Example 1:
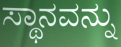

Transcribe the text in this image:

ಸ್ಥಾನವನ್ನು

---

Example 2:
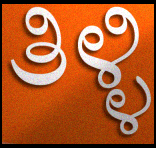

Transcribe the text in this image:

ತಿಳ್ಳಿ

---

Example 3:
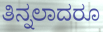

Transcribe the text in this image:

ತಿನ್ನಲಾದರೂ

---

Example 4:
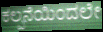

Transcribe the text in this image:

ಕಲ್ಪನೆಯಿಂದಲೇ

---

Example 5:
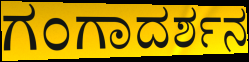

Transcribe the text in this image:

ಗಂಗಾದರ್ಶನ